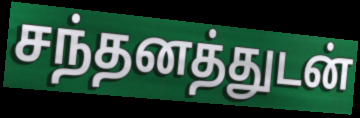
சந்தனத்துடன்